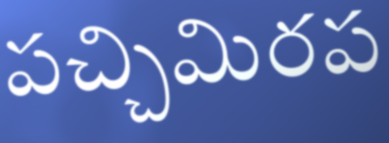
పచ్చిమిరప